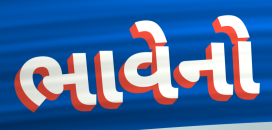
ભાવેનો